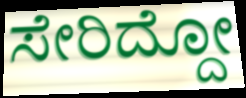
ಸೇರಿದ್ದೋ